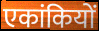
एकांकियों